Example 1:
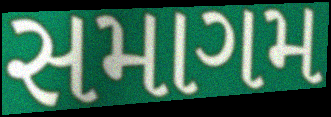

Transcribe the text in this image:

સમાગમ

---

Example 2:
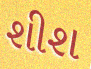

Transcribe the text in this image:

શીશ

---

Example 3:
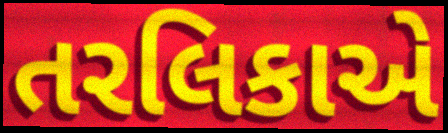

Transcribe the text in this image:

તરલિકાએ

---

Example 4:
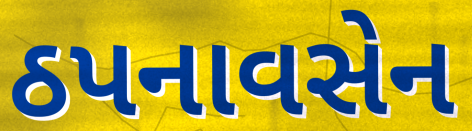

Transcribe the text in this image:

ઠપનાવસેન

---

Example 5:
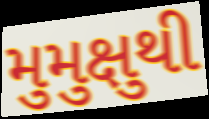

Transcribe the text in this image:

મુમુક્ષુથી